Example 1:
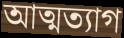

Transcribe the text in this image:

আত্মত্যাগ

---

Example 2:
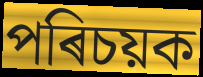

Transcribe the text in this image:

পৰিচয়ক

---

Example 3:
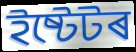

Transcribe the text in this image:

ইষ্টেটৰ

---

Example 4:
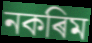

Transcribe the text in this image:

নকৰিম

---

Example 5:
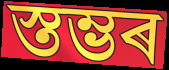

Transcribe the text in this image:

স্তম্ভৰ